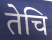
तेचि